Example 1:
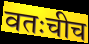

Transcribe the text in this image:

वतःचीच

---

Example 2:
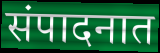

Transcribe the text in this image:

संपादनात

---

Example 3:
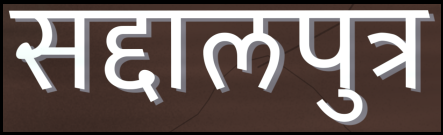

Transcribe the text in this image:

सद्दालपुत्र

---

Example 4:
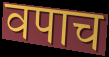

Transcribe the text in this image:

वपाच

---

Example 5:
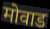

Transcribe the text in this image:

मोवाड